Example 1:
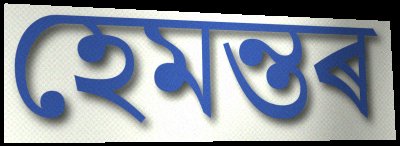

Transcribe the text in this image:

হেমন্তৰ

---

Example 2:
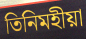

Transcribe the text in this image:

তিনিমহীয়া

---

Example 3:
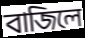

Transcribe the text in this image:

বাজিলে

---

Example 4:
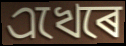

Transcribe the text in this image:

এখেৰে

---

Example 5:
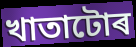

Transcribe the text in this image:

খাতাটোৰ